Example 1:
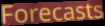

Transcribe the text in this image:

Forecasts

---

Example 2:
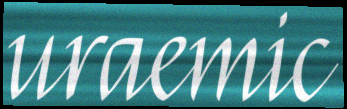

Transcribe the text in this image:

uraemic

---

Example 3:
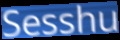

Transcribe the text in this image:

Sesshu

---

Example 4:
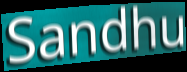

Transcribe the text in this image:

Sandhu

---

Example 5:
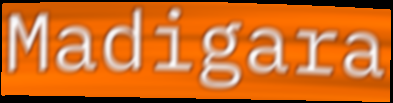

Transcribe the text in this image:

Madigara